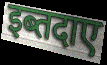
इब्तदाए